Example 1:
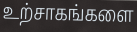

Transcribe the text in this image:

உற்சாகங்களை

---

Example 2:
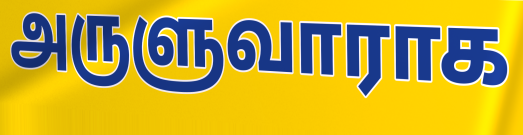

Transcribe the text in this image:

அருளுவாராக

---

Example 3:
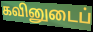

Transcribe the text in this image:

கவினுடைப்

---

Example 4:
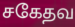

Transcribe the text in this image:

சகேதவ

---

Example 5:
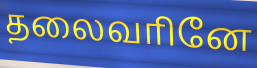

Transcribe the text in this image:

தலைவரினே